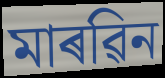
মাৰৱিন